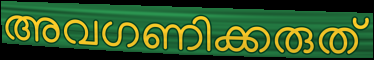
അവഗണിക്കരുത്